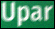
Upar